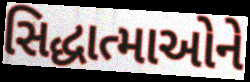
સિદ્ધાત્માઓને